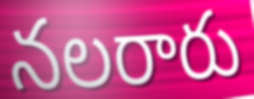
నలరారు